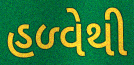
હળ્વેથી